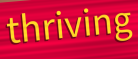
thriving